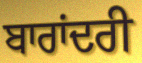
ਬਾਰਾਂਦਰੀ